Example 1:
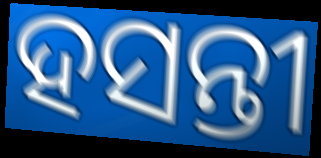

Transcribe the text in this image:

ହସନ୍ତୀ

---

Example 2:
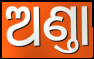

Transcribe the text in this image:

ଅଣ୍ତା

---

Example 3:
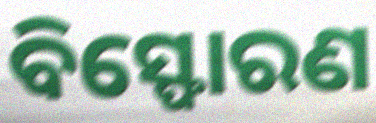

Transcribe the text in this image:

ବିସ୍ଫୋରଣ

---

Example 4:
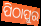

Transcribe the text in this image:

ପିଠାପୁର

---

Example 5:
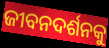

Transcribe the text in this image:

ଜୀବନଦର୍ଶନକୁ